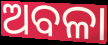
ଅବଳା